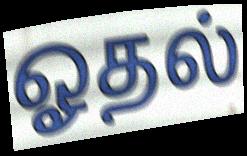
ஓதல்